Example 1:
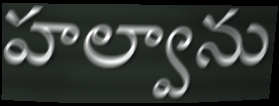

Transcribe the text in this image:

హల్వాను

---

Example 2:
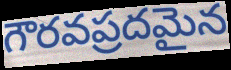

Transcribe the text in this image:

గౌరవప్రదమైన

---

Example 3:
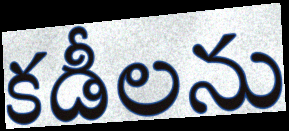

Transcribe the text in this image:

కడీలను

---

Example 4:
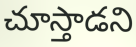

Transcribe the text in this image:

చూస్తాడని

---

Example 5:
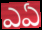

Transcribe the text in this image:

ఎఏ